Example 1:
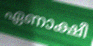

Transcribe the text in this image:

ഏണാക്ഷീ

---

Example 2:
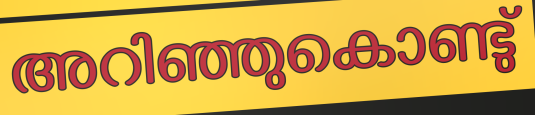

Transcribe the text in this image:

അറിഞ്ഞുകൊണ്ടു്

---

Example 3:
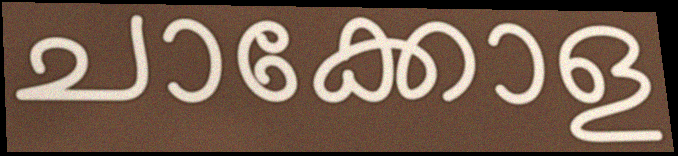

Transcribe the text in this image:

ചാക്കോള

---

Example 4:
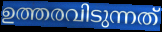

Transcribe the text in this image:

ഉത്തരവിടുന്നത്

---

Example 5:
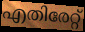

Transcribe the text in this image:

എതിരേറ്റ്